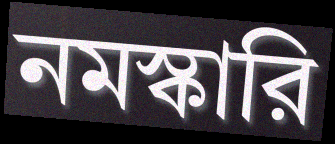
নমস্কারি